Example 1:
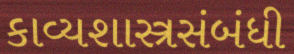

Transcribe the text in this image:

કાવ્યશાસ્ત્રસંબંધી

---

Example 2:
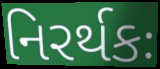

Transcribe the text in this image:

નિરર્થકઃ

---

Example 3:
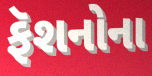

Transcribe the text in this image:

ફૅશનોના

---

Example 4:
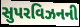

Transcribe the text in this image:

સુપરવિઝનની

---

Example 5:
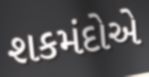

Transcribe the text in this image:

શકમંદોએ